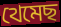
থেমেছ